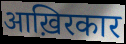
आख़िरकार